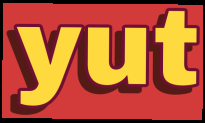
yut